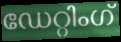
ഡേറ്റിംഗ്